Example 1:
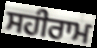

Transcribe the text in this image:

ਸਹੀਰਾਮ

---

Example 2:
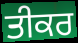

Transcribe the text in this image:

ਤੀਕਰ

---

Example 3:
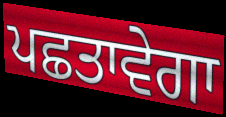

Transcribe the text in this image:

ਪਛਤਾਵੇਗਾ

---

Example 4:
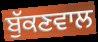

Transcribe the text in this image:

ਬੁੱਕਣਵਾਲ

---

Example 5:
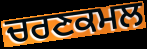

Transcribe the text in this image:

ਚਰਣਕਮਲ